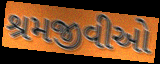
શ્રમજીવીઓ